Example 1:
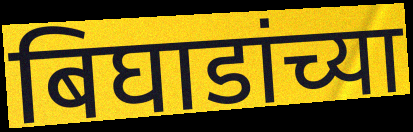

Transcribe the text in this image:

बिघाडांच्या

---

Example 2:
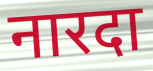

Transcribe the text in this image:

नारदा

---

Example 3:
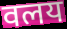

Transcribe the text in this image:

वलय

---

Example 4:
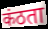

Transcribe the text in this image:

कंठता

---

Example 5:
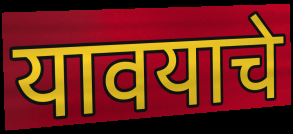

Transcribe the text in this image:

यावयाचे